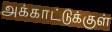
அக்காட்டுக்குள்